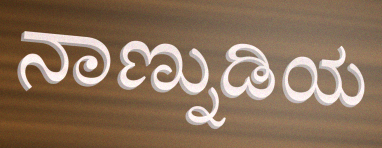
ನಾಣ್ನುಡಿಯ